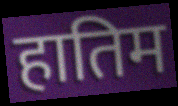
हातिम